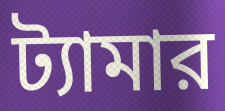
ট্যামার